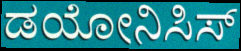
ಡಯೋನಿಸಿಸ್